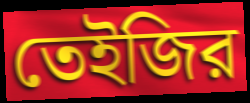
তেইজির